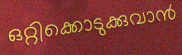
ഒറ്റിക്കൊടുക്കുവാൻ